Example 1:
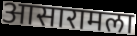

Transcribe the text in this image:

आसारामला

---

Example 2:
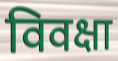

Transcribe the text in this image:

विवक्षा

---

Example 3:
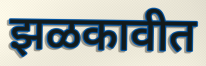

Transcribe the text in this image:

झळकावीत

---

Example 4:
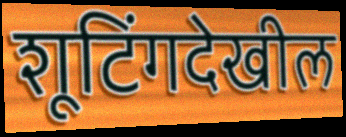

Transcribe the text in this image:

शूटिंगदेखील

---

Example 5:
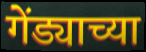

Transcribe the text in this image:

गेंड्याच्या